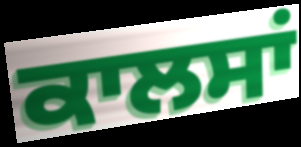
ਕਾਲਸਾਂ